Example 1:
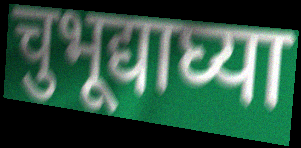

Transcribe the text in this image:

चुभूद्याघ्या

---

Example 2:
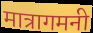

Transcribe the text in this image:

मात्रागमनी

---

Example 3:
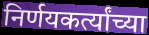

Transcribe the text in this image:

निर्णयकर्त्यांच्या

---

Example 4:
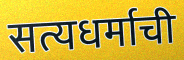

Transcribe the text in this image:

सत्यधर्माची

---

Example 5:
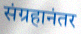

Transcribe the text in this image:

संग्रहानंतर